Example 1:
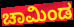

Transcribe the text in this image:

ಚಾಮಿಂಡ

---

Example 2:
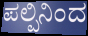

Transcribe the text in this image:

ಪಲ್ಪಿನಿಂದ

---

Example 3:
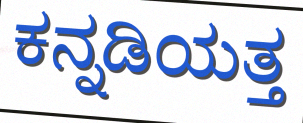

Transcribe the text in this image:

ಕನ್ನಡಿಯತ್ತ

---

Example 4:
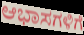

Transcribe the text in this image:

ಆಭಾಸಗಳಿಗೆ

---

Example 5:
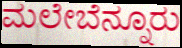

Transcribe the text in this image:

ಮಲೇಬೆನ್ನೂರು